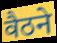
वैठने